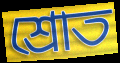
শ্ৰোত